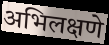
अभिलक्षणे